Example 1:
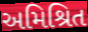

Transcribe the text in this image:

અમિશ્રિત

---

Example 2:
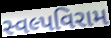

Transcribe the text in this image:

સ્વલ્પવિરામ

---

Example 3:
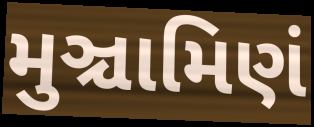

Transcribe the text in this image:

મુઞ્ચામિણં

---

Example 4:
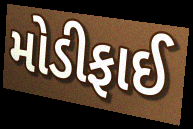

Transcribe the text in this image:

મોડીફાઈ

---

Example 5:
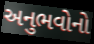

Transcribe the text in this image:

અનુભવોનો